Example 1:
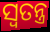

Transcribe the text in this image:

ସ୍ୱତନ୍ତ୍ର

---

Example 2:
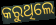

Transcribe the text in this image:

କରୁଥିଲେ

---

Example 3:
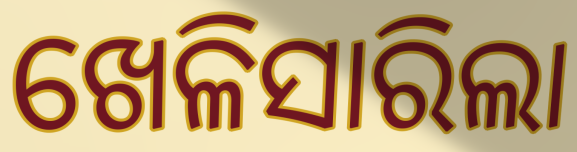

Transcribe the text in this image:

ଖେଳିସାରିଲା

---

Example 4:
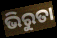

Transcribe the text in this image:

ଭିରୁତା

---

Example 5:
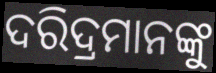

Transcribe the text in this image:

ଦରିଦ୍ରମାନଙ୍କୁ